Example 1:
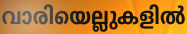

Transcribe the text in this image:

വാരിയെല്ലുകളിൽ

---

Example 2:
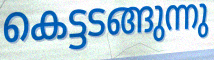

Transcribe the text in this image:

കെട്ടടങ്ങുന്നു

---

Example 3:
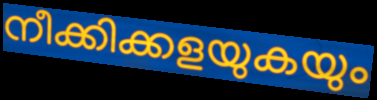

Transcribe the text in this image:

നീക്കിക്കളയുകയും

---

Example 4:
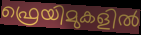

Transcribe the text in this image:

ഫ്രെയിമുകളിൽ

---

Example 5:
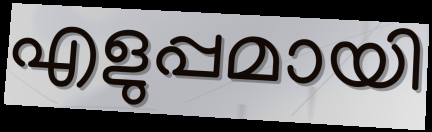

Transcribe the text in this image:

എളുപ്പമായി